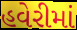
હવેરીમાં